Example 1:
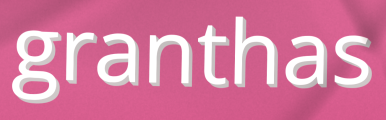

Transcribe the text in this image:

granthas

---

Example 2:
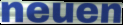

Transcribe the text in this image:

neuen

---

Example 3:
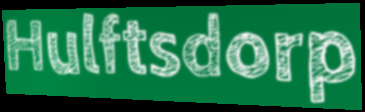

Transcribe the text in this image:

Hulftsdorp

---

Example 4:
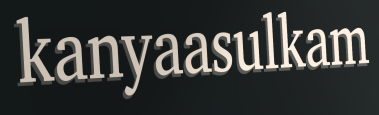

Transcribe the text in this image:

kanyaasulkam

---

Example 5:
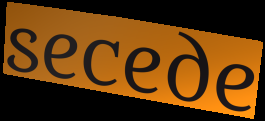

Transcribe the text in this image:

secede